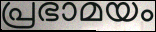
പ്രഭാമയം